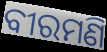
ବୀରମଣି